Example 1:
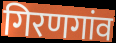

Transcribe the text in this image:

गिरणगांव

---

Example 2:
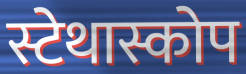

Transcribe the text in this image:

स्टेथास्कोप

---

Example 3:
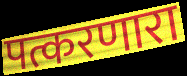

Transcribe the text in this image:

पत्करणारा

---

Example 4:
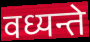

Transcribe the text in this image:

वध्यन्ते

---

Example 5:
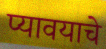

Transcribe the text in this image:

प्यावयाचे